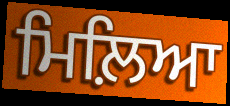
ਮਿਲ਼ਿਆ